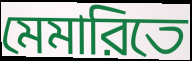
মেমারিতে